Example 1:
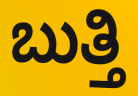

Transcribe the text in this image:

ಬುತ್ತಿ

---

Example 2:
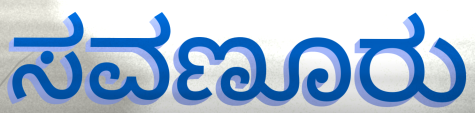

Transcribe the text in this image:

ಸವಣೂರು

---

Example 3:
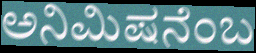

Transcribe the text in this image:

ಅನಿಮಿಷನೆಂಬ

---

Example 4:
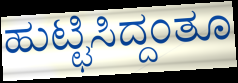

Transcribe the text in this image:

ಹುಟ್ಟಿಸಿದ್ದಂತೂ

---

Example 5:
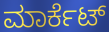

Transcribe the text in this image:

ಮಾರ್ಕೆಟ್